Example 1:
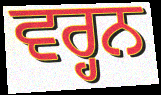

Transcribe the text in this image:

ਵਰ੍ਹਨ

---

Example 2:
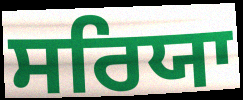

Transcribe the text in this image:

ਸਰਿਯਾ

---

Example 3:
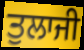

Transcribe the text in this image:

ਤੁਲਾਜੀ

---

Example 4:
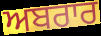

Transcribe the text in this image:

ਅਬਰਾਰ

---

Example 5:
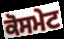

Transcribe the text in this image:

ਕੋਸਮੇਟ